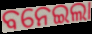
ବନେଇଲା